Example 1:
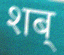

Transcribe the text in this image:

शब्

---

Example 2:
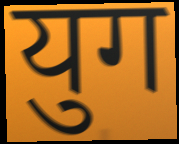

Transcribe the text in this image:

युग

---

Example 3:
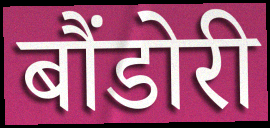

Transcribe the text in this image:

बौंडोरी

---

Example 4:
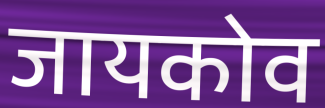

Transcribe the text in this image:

जायकोव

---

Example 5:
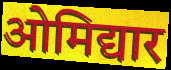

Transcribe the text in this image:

ओमिद्यार